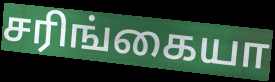
சரிங்கையா